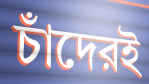
চাঁদেরই